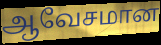
ஆவேசமான